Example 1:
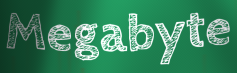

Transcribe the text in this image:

Megabyte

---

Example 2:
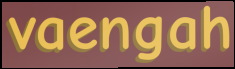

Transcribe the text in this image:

vaengah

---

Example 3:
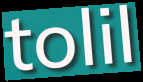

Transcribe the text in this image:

tolil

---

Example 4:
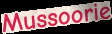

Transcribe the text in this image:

Mussoorie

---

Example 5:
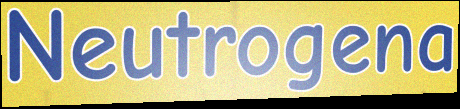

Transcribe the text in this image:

Neutrogena